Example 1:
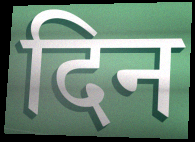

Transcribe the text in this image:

दिन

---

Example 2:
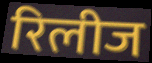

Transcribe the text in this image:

रिलीज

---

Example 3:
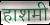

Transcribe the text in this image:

हाशमी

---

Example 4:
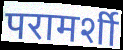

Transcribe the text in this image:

परामर्शी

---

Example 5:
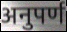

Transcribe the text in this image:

अनुपर्ण